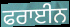
ਫਰਾਈਨ